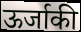
ऊर्जाकी